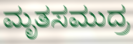
ಮೃತಸಮುದ್ರ